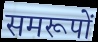
समरूपों